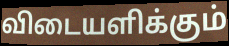
விடையளிக்கும்